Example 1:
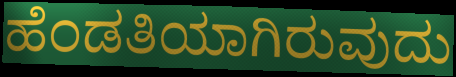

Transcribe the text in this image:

ಹೆಂಡತಿಯಾಗಿರುವುದು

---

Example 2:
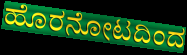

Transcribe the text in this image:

ಹೊರನೋಟದಿಂದ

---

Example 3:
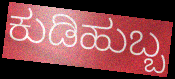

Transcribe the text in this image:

ಕುಡಿಹುಬ್ಬ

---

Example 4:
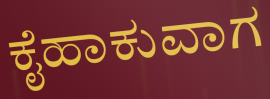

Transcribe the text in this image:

ಕೈಹಾಕುವಾಗ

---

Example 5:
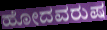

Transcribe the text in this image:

ಹೋದವರುಷ